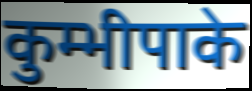
कुम्भीपाके